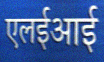
एलईआई